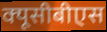
क्यूसीबीएस